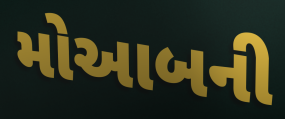
મોઆબની